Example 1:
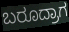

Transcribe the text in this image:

ಬರೂದ್ರಾಗ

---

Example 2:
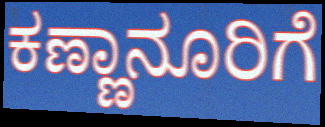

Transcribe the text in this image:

ಕಣ್ಣಾನೂರಿಗೆ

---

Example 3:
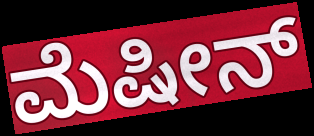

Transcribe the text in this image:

ಮೆಷೀನ್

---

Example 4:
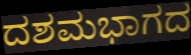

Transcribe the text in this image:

ದಶಮಭಾಗದ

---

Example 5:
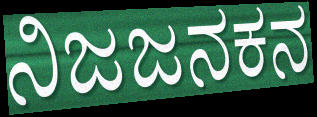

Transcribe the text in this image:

ನಿಜಜನಕನ